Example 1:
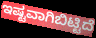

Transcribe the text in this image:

ಇಷ್ಟವಾಗಿಬಿಟ್ಟಿದೆ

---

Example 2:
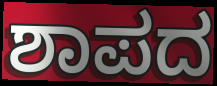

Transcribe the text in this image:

ಶಾಪದ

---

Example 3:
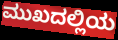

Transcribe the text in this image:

ಮುಖದಲ್ಲಿಯ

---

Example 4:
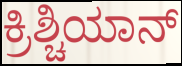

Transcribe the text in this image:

ಕ್ರಿಶ್ಚಿಯಾನ್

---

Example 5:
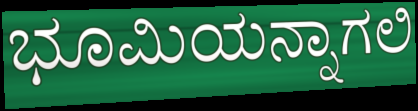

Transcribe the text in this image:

ಭೂಮಿಯನ್ನಾಗಲಿ